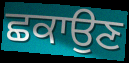
ਛਕਾਉਣ